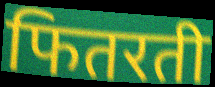
फितरती